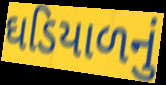
ઘડિયાળનું